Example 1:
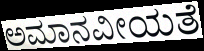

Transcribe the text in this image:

ಅಮಾನವೀಯತೆ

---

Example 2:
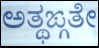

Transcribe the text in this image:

ಅತ್ಥಙ್ಗತೇ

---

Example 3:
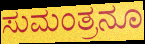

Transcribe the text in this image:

ಸುಮಂತ್ರನೂ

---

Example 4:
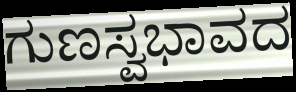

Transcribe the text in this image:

ಗುಣಸ್ವಭಾವದ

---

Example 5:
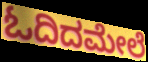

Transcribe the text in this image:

ಓದಿದಮೇಲೆ